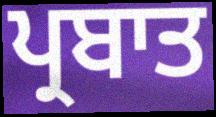
ਪ੍ਰਬਾਤ